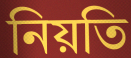
নিয়তি